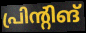
പ്രിന്റിങ്